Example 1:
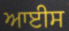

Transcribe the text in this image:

ਆਈਸ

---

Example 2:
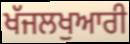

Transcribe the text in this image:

ਖੱਜਲਖੁਆਰੀ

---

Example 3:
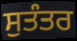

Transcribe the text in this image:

ਸੁਤੰਤਰ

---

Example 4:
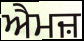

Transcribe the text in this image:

ਐਮਜ਼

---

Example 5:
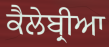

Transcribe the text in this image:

ਕੈਲੇਬ੍ਰੀਆ